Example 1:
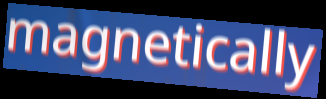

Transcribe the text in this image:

magnetically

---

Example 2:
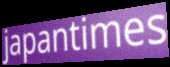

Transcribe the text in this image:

japantimes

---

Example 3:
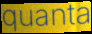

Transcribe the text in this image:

quanta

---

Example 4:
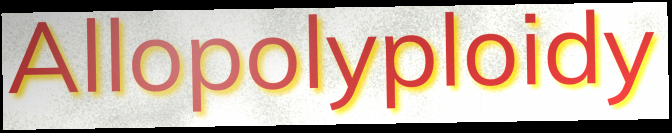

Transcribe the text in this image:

Allopolyploidy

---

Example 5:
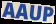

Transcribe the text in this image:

AAUP